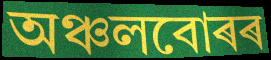
অঞ্চলবোৰৰ